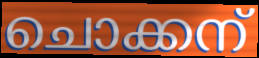
ചൊക്കന്